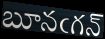
బూనఁగన్